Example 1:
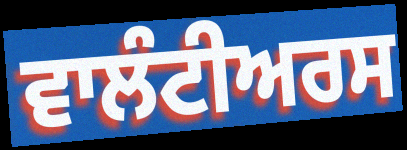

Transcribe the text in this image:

ਵਾਲੰਟੀਅਰਸ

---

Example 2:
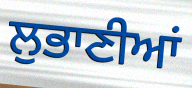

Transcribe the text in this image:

ਲੁਭਾਣੀਆਂ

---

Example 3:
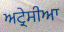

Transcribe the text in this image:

ਅਟ੍ਰੇਸੀਆ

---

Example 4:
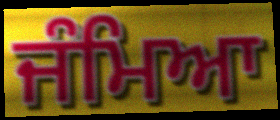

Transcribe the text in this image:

ਜੰਮਿਆ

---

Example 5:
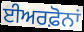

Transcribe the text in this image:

ਈਅਰਫ਼ੋਨਾਂ